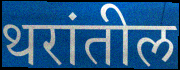
थरांतील